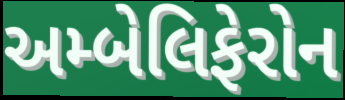
અમ્બેલિફેરોન